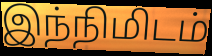
இந்நிமிடம்